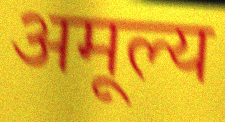
अमूल्य